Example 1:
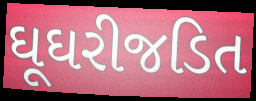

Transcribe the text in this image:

ઘૂઘરીજડિત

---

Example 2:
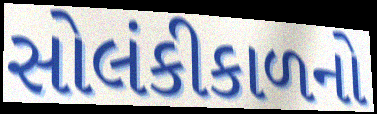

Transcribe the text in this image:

સોલંકીકાળનો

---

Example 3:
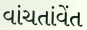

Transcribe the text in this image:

વાંચતાંવેંત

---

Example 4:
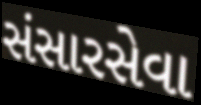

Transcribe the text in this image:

સંસારસેવા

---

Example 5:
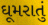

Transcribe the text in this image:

ઘૂમરાતું